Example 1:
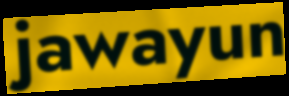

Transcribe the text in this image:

jawayun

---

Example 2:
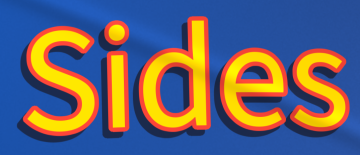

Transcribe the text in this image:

Sides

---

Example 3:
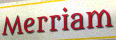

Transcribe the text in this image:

Merriam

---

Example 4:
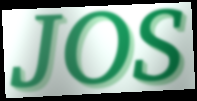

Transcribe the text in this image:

JOS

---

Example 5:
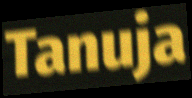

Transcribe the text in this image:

Tanuja